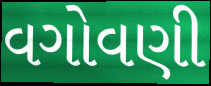
વગોવણી